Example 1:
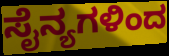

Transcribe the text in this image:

ಸೈನ್ಯಗಳಿಂದ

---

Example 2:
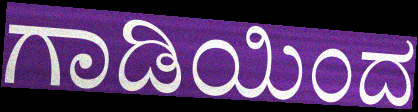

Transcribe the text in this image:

ಗಾಡಿಯಿಂದ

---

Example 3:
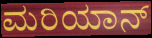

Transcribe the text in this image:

ಮರಿಯಾನ್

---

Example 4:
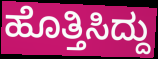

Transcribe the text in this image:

ಹೊತ್ತಿಸಿದ್ದು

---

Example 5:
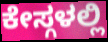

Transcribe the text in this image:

ಕೇಸ್ಗಳಲ್ಲಿ